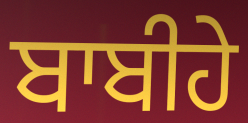
ਬਾਬੀਹੇ